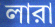
লারা